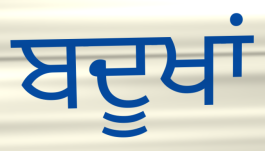
ਬਦੂਖਾਂ